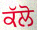
ਕੱਲੋ